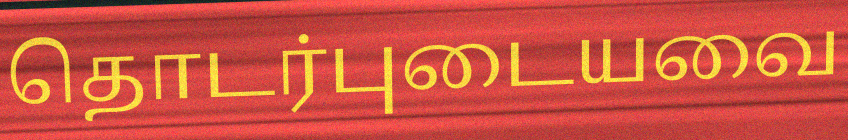
தொடர்புடையவை